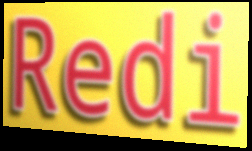
Redi